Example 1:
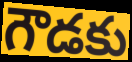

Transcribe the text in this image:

గౌడకు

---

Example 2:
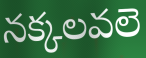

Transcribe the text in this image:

నక్కలవలె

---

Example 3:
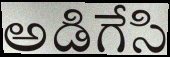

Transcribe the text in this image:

అడిగేసి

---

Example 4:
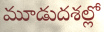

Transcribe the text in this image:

మూడుదశల్లో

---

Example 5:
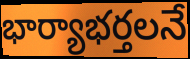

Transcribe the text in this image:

భార్యాభర్తలనే